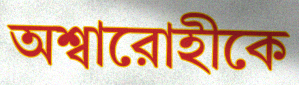
অশ্বারোহীকে